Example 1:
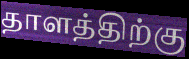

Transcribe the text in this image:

தாளத்திற்கு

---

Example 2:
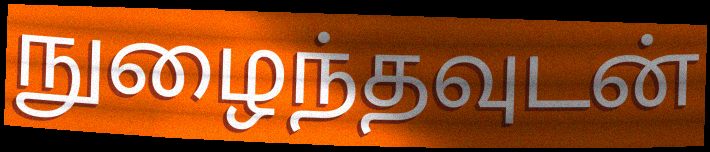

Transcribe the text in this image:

நுழைந்தவுடன்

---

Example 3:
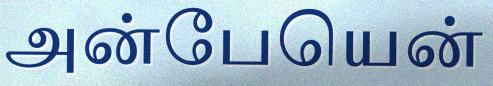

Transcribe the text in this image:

அன்பேயென்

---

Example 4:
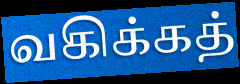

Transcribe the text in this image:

வகிக்கத்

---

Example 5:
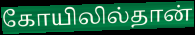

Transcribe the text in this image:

கோயிலில்தான்